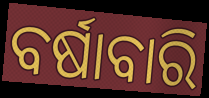
ବର୍ଷାବାରି